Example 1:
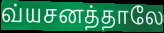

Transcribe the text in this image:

வ்யசனத்தாலே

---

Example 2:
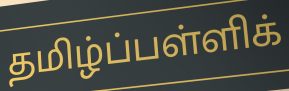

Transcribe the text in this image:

தமிழ்ப்பள்ளிக்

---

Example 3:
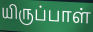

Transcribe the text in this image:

யிருப்பாள்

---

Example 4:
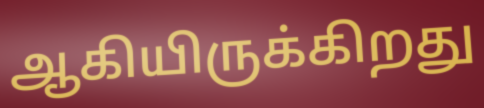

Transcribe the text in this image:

ஆகியிருக்கிறது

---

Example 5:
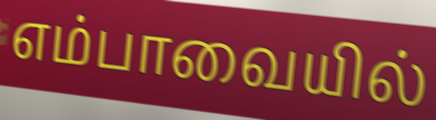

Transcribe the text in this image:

எம்பாவையில்